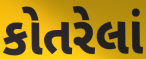
કોતરેલાં